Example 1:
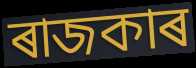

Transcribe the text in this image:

ৰাজকাৰ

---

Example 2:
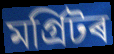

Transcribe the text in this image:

মৰ্গ্ৰিটৰ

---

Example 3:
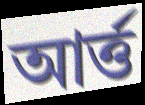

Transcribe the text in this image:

আৰ্ত্ত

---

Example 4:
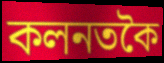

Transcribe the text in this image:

কলনতকৈ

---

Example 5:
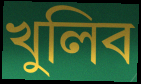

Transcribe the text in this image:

খুলিব